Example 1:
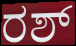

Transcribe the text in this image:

ರಶ್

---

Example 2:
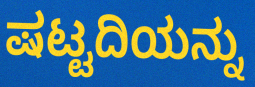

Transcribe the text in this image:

ಷಟ್ಟದಿಯನ್ನು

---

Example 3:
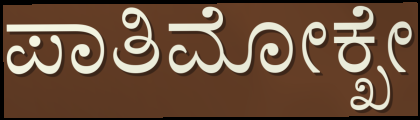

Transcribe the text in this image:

ಪಾತಿಮೋಕ್ಖೇ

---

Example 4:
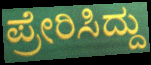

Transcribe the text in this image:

ಪ್ರೇರಿಸಿದ್ದು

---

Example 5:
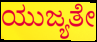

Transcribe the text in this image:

ಯುಜ್ಯತೇ